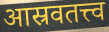
आस्रवतत्त्व